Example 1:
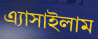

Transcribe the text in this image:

এ্যাসাইলাম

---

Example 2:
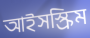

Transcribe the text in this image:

আইসস্ক্রিম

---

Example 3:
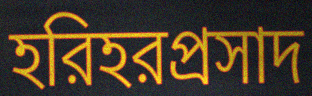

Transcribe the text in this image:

হরিহরপ্রসাদ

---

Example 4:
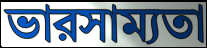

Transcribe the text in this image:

ভারসাম্যতা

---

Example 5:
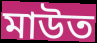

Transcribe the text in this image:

মাউত